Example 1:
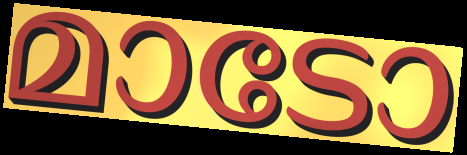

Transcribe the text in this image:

മാടോ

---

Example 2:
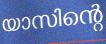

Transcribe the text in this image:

യാസിന്റെ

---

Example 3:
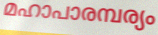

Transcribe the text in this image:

മഹാപാരമ്പര്യം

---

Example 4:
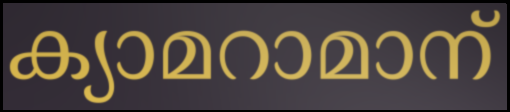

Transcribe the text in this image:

ക്യാമറാമാന്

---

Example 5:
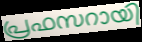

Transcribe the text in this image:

പ്രഫസറായി